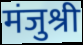
मंजुश्री